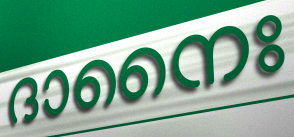
ദാനൈഃ